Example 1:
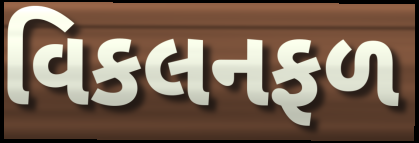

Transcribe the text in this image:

વિકલનફળ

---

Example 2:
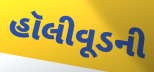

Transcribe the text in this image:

હૉલીવૂડની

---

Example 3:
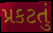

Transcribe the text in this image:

પ્રકટતું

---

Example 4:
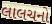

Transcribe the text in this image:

લાલચનો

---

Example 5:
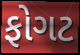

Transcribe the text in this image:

ફોગટ